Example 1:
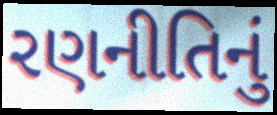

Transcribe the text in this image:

રણનીતિનું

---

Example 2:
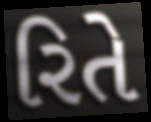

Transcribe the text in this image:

રિતે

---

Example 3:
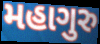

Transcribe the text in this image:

મહાગુરુ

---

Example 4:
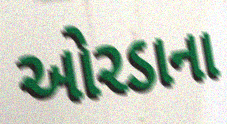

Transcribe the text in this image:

ઓરડાના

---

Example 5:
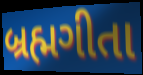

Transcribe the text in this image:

બ્રહ્મગીતા